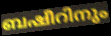
ബഷീറിനും